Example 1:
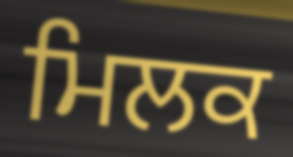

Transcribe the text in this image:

ਮਿਲਕ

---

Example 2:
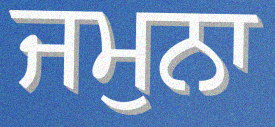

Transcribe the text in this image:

ਜਮੁਨਾ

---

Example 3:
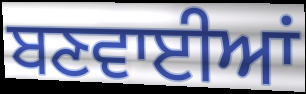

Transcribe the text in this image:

ਬਣਵਾਈਆਂ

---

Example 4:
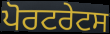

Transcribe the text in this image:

ਪੋਰਟਰੇਟਸ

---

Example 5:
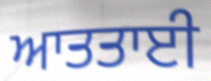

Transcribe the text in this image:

ਆਤਤਾਈ